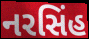
નરસિંહ